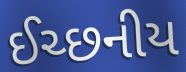
ઈચ્છનીય